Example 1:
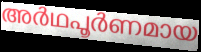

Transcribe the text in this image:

അർഥപൂർണമായ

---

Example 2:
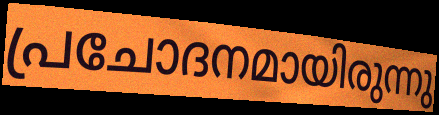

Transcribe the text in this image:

പ്രചോദനമായിരുന്നു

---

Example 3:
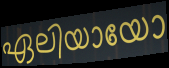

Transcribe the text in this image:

ഏലിയായോ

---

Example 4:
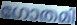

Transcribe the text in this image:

ഗോതമി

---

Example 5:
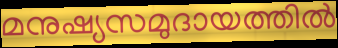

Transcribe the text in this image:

മനുഷ്യസമുദായത്തിൽ